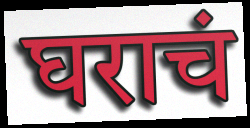
घराचं